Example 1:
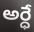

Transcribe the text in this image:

అర్ధే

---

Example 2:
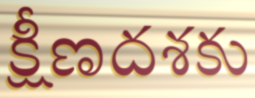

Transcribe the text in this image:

క్షీణదశకు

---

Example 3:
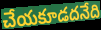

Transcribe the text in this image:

చేయకూడదనేది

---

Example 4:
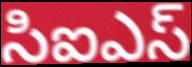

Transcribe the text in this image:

సిఐఎస్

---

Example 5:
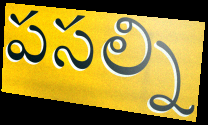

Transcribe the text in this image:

పసల్ని